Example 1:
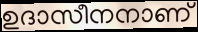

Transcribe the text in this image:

ഉദാസീനനാണ്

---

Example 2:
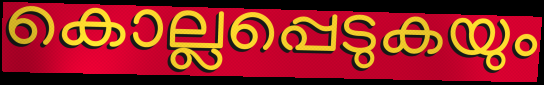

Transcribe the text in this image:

കൊല്ലപ്പെടുകയും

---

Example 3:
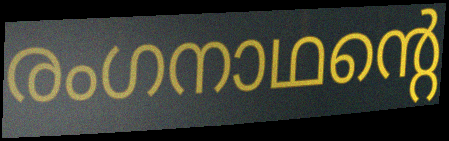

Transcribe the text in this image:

രംഗനാഥന്റെ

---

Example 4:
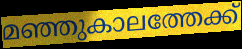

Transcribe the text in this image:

മഞ്ഞുകാലത്തേക്ക്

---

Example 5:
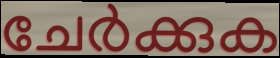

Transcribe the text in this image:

ചേർക്കുക